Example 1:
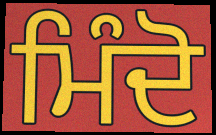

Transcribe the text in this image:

ਮਿੰਦੋ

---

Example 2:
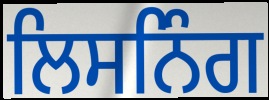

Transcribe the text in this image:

ਲਿਸਨਿੰਗ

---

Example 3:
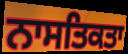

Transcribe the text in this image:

ਨਾਸਤਿਕਤਾ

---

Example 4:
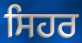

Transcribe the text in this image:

ਸਿਹਰ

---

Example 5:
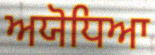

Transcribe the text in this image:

ਅਯੋਧਿਆ